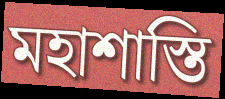
মহাশাস্তি